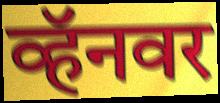
व्हॅनवर